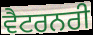
ਵੈਟਰਨਰੀ